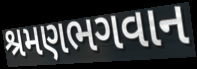
શ્રમણભગવાન